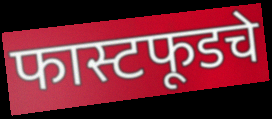
फास्टफूडचे